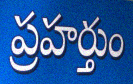
ప్రహర్తుం